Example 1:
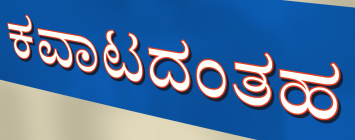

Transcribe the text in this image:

ಕವಾಟದಂತಹ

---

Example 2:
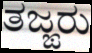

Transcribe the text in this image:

ತಜ್ಙರು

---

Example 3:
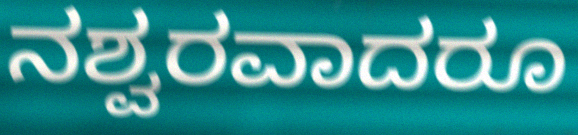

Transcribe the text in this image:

ನಶ್ವರವಾದರೂ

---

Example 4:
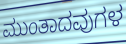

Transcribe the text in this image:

ಮುಂತಾದವುಗಳ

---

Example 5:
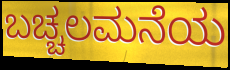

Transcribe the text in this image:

ಬಚ್ಚಲಮನೆಯ